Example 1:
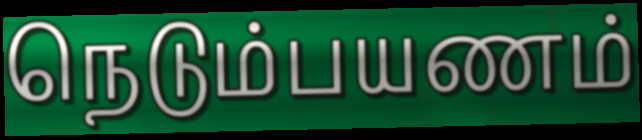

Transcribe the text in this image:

நெடும்பயணம்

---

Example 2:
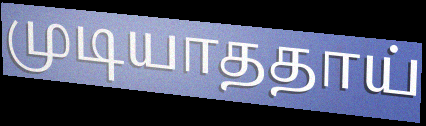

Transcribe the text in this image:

முடியாததாய்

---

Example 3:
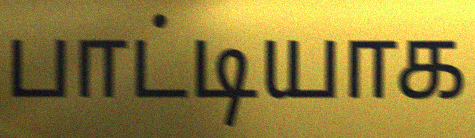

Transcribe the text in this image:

பாட்டியாக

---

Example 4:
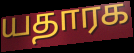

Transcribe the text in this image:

யதாரக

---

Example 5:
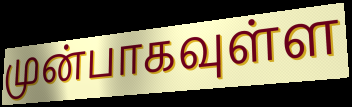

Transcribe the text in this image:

முன்பாகவுள்ள